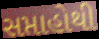
સપ્તાહોથી